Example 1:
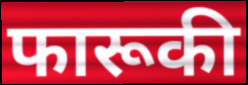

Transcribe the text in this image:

फारूकी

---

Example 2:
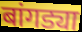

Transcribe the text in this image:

बांगड्या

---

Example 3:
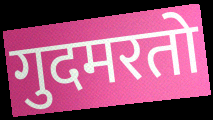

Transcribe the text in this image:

गुदमरतो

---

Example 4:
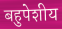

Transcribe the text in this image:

बहुपेशीय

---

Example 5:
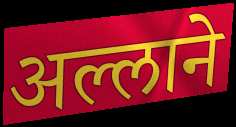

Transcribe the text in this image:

अल्लाने